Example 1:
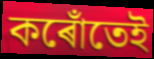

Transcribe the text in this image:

কৰোঁতেই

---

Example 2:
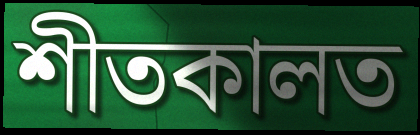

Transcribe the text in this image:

শীতকালত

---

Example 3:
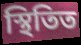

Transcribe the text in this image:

স্থিতিত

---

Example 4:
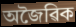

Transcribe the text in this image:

অজৈৱিক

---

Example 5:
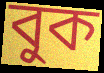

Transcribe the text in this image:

বুক